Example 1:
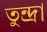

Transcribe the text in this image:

তুন্দ্রা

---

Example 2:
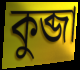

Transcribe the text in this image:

কুব্জা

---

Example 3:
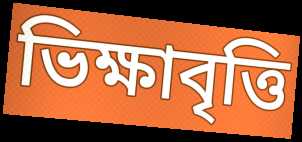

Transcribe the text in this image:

ভিক্ষাবৃত্তি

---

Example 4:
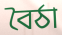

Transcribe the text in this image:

বৈঠা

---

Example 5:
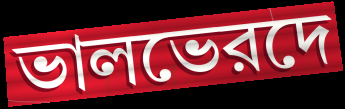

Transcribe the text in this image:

ভালভেরদে